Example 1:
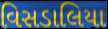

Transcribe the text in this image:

વિસડાલિયા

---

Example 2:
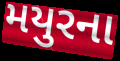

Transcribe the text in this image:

મયુરના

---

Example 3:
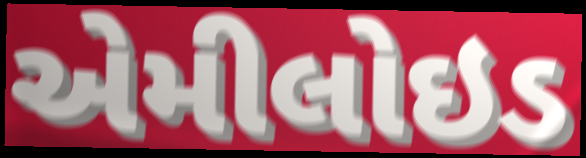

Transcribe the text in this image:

એમીલોઇડ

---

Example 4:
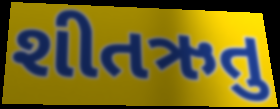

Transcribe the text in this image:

શીતઋતુ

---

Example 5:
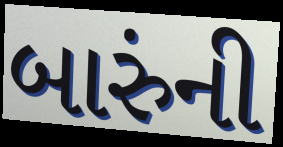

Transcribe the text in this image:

બારુંની